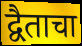
द्वैताचा